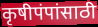
कृषीपंपांसाठी